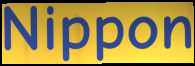
Nippon